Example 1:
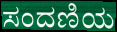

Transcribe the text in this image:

ಸಂದಣಿಯ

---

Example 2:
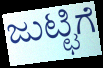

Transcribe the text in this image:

ಜುಟ್ಟಿಗೆ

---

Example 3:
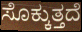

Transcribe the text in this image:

ಸೊಕ್ಕುತ್ತದೆ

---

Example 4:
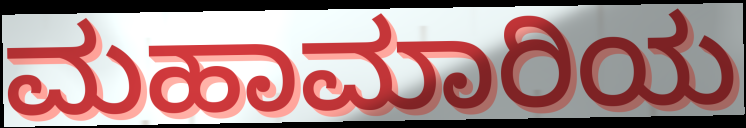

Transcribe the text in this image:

ಮಹಾಮಾರಿಯ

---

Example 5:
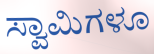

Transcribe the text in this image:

ಸ್ವಾಮಿಗಳೂ